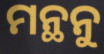
ମନ୍ଥନୁ